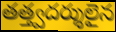
తత్త్వదర్శులైన